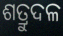
ଶତ୍ରୁଦଳ